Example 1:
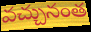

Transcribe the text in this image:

వచ్చునంత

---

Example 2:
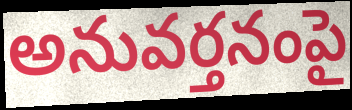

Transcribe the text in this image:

అనువర్తనంపై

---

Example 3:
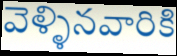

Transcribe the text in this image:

వెళ్ళినవారికి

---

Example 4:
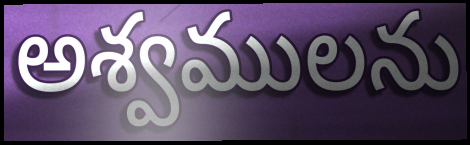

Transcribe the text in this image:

అశ్వములను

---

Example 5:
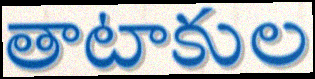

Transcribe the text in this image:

తాటాకుల